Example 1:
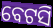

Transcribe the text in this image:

ବେଟସି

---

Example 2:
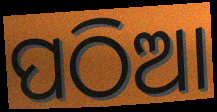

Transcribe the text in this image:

ପଠିଆ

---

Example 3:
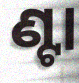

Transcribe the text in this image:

ଣ୍ଟା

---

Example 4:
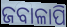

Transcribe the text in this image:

ଜବାଳାପି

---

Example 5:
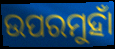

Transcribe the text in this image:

ଉପରମୁହାଁ